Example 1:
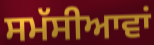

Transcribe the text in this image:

ਸਮੱਸੀਆਵਾਂ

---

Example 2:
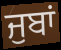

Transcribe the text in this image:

ਜੁਬਾਂ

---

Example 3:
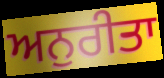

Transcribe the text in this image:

ਅਨੁਰੀਤਾ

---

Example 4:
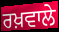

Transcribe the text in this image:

ਰਖ਼ਵਾਲੇ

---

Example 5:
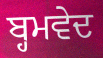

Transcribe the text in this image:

ਬ੍ਹਮਵੇਦ